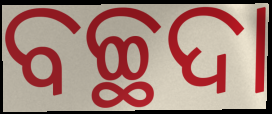
ବଚ୍ଛଦା